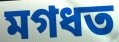
মগধত